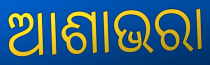
ଆଶାଭରା